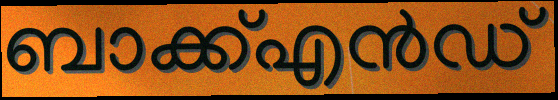
ബാക്ക്എൻഡ്